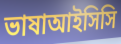
ভাষাআইসিসি